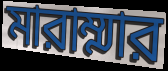
মারাম্মার